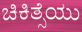
ಚಿಕಿತ್ಸೆಯು